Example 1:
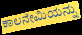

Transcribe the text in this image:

ಕಾಲನೇಮಿಯನ್ನು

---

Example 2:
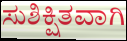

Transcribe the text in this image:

ಸುಶಿಕ್ಷಿತವಾಗಿ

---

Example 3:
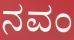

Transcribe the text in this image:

ನವಂ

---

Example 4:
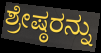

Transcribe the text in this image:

ಶ್ರೇಷ್ಠರನ್ನು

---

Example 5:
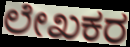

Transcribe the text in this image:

ಲೇಖಕರ